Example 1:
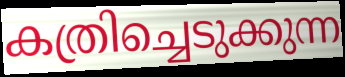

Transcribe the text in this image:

കത്രിച്ചെടുക്കുന്ന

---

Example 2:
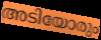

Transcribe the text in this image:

അടിയോരും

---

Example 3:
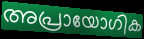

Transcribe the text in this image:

അപ്രായോഗിക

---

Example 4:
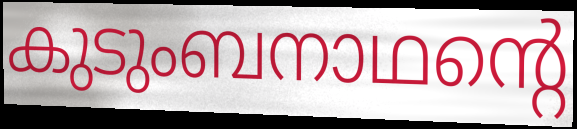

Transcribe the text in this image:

കുടുംബനാഥന്റെ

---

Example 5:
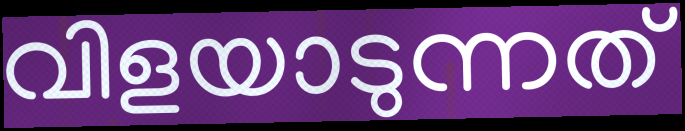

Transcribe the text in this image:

വിളയാടുന്നത്